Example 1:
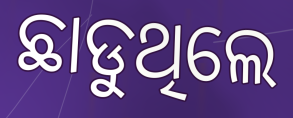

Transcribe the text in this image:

ଛାଡୁଥିଲେ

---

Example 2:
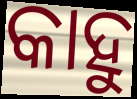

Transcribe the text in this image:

କାହୁ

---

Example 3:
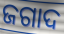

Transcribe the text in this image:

ଜଗାଦ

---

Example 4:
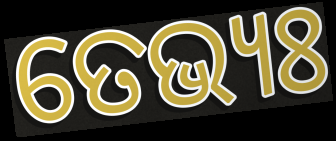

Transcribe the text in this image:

ତେଭ୍ୟଃ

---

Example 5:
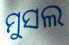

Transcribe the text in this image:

ମୁସଲ